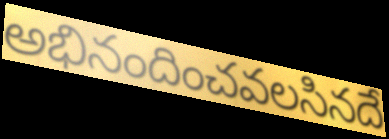
అభినందించవలసినదే